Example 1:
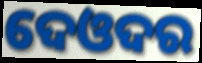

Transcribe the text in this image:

ଦେଓଦର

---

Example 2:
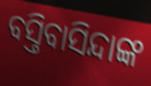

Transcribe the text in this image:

ବସ୍ତିବାସିନ୍ଦାଙ୍କ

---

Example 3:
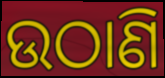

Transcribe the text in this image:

ଉଠାଣି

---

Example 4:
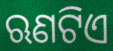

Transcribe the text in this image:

ଋଣଟିଏ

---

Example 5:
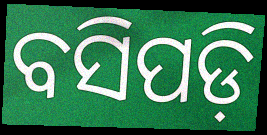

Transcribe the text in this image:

ବସିପଡ଼ି